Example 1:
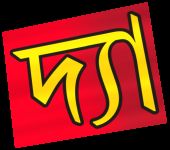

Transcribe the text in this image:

দ্যা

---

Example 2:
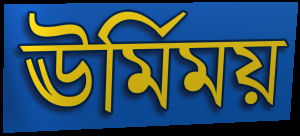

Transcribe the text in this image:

ঊর্মিময়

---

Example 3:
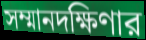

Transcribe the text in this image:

সম্মানদক্ষিণার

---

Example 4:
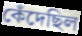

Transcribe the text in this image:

কেঁদেছিল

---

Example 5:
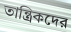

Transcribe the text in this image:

তান্ত্রিকদের